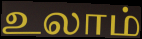
உலாம்